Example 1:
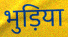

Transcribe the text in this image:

भुड़िया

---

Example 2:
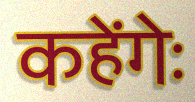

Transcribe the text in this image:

कहेंगेः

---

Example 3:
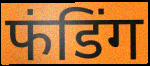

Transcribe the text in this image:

फंडिंग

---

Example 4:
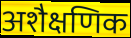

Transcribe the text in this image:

अशैक्षणिक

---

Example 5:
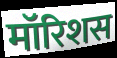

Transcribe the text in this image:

मॉरिशस